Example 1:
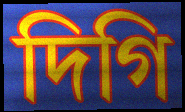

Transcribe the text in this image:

দিগি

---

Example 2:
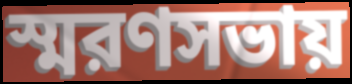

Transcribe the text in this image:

স্মরণসভায়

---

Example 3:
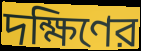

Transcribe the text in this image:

দক্ষিণের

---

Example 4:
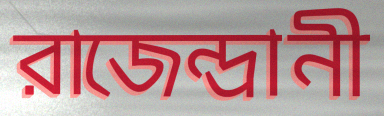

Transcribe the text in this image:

রাজেন্দ্রানী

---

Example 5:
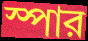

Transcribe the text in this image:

স্পার